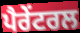
ਪੈਰੇਂਟਰਲ